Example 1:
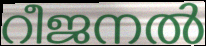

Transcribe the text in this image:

റീജനൽ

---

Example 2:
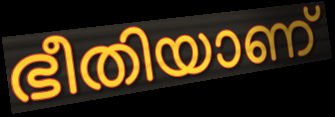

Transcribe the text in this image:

ഭീതിയാണ്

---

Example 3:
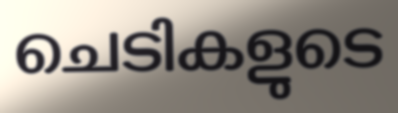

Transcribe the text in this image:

ചെടികളുടെ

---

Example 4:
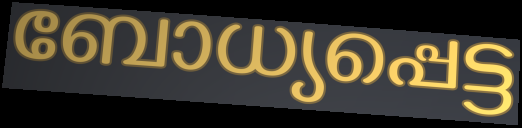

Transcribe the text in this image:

ബോധ്യപ്പെട്ട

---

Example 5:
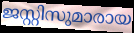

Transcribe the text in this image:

ജസ്റ്റിസുമാരായ